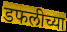
डफलीच्या